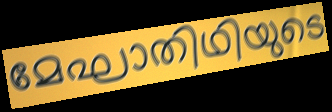
മേഘാതിഥിയുടെ